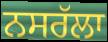
ਨਸਰੱਲਾ